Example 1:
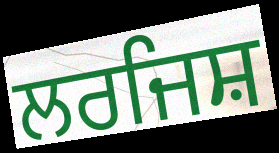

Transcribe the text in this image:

ਲਰਜਿਸ਼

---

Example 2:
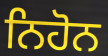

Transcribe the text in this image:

ਨਿਹੋਨ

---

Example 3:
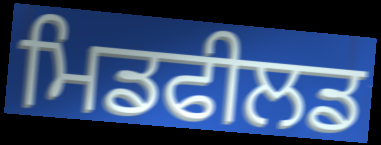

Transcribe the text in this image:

ਮਿਡਫੀਲਡ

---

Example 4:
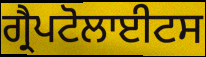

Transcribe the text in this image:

ਗ੍ਰੈਪਟੋਲਾਈਟਸ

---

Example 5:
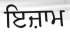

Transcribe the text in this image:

ਇਜ਼ਾਮ